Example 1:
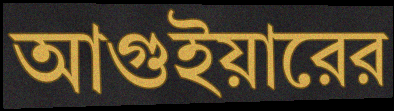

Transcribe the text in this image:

আগুইয়ারের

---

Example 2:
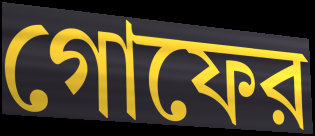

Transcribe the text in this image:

গোফের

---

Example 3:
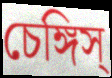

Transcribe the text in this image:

চেঙ্গিস্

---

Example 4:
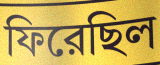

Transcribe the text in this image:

ফিরেছিল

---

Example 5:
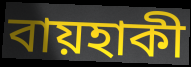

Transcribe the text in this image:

বায়হাকী